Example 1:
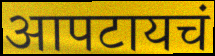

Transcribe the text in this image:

आपटायचं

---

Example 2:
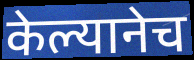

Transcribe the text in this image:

केल्यानेच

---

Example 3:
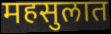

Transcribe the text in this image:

महसुलात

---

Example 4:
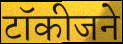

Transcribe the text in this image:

टॉकीजने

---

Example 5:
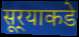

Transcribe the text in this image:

सूर्याकडे